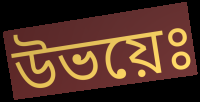
উভয়েঃ